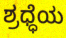
ಶ್ರಧ್ಧೆಯ